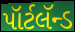
પૉર્ટલૅન્ડ